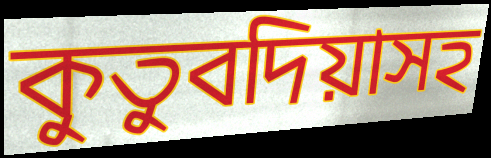
কুতুবদিয়াসহ